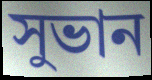
সুভান